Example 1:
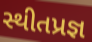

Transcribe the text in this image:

સ્થીતપ્રજ્ઞ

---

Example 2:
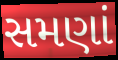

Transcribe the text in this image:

સમણાં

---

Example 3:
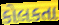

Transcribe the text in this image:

કોલકતા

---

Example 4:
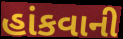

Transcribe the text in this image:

હાંકવાની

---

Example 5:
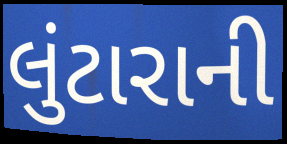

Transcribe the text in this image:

લુંટારાની